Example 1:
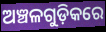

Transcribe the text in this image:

ଅଞ୍ଚଳଗୁଡ଼ିକରେ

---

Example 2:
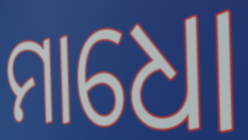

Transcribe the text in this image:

ମାଧୋ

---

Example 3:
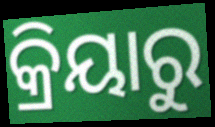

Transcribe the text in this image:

କ୍ରିୟାରୁ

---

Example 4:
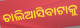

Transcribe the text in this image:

ଚାଲିଆସିବାଟାକୁ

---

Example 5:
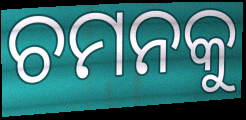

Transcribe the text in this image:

ଚମନକୁ